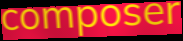
composer